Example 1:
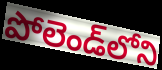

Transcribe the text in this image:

పోలెండ్‌లోని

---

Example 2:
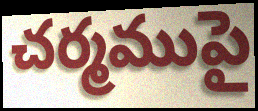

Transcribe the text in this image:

చర్మముపై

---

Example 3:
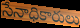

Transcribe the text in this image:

సేనాధికారులు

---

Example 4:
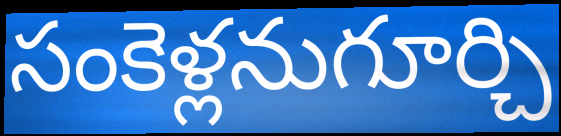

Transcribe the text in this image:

సంకెళ్లనుగూర్చి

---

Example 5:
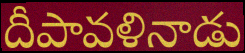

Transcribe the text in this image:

దీపావళినాడు